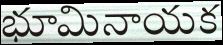
భూమినాయక